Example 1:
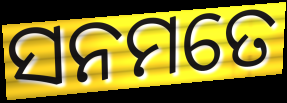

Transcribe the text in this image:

ସନମତେ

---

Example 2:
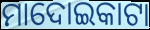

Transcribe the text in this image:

ମାଦୋଇକାଟା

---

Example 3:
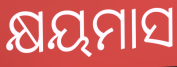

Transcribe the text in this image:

କ୍ଷୟମାସ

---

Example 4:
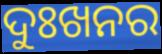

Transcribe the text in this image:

ଦୁଃଖନର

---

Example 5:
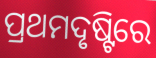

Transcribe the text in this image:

ପ୍ରଥମଦୃଷ୍ଟିରେ